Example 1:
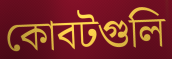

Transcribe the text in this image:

কোবটগুলি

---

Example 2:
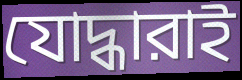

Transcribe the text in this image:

যোদ্ধারাই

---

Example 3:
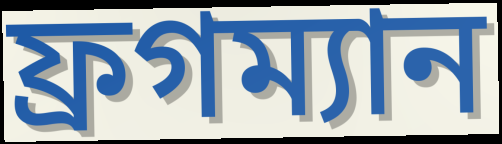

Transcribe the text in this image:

ফ্রগম্যান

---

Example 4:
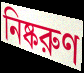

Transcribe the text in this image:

নিষ্করুণ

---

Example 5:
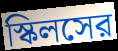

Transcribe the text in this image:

স্কিলসের